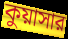
কুয়াসার